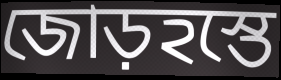
জোড়হস্তে